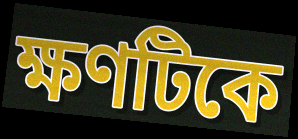
ক্ষণটিকে